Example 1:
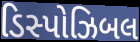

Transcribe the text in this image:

ડિસ્પોઝિબલ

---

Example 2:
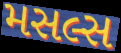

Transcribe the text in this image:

મસલ્સ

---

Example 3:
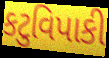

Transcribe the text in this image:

કટુવિપાકી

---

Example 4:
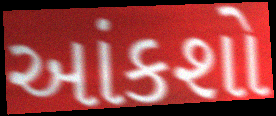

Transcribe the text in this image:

આંકશો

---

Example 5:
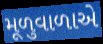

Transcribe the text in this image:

મૂળુવાળાએ